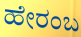
ಹೇರಂಬ